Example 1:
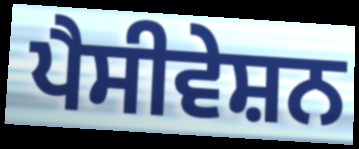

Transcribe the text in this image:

ਪੈਸੀਵੇਸ਼ਨ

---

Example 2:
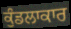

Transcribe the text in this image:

ਕੁੰਡਲਾਕਾਰ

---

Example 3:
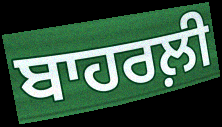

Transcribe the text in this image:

ਬਾਹਰਲ਼ੀ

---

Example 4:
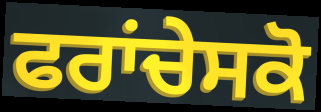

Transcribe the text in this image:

ਫਰਾਂਚੇਸਕੋ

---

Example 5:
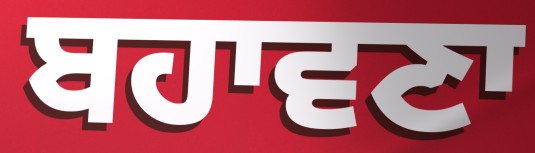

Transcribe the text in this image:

ਬਹਾਵਣਾ